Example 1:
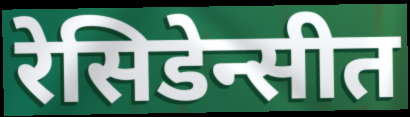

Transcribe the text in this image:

रेसिडेन्सीत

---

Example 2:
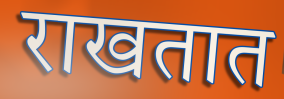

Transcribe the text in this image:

राखतात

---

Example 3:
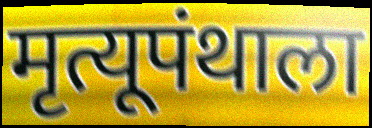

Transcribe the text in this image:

मृत्यूपंथाला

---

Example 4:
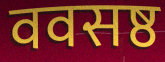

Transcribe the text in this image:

ववसष्ठ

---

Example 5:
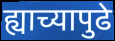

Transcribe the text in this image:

ह्याच्यापुढे